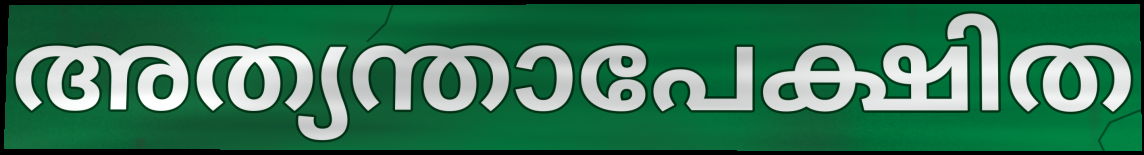
അത്യന്താപേക്ഷിത